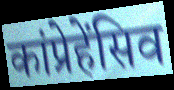
कांप्रेहेंसिव